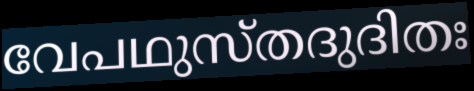
വേപഥുസ്തദുദിതഃ